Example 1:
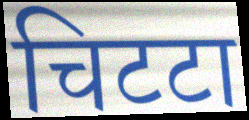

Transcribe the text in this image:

चिटटा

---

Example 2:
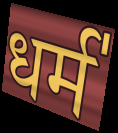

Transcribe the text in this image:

धर्म॑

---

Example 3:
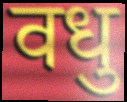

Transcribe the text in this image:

वधु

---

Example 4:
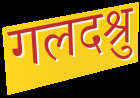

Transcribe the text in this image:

गलदश्रु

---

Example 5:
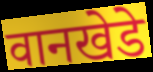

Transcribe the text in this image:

वानखेडे